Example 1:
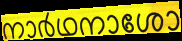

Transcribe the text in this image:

നാർഥനാശോ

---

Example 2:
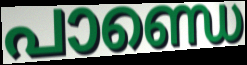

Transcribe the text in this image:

പാണ്ഡെ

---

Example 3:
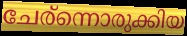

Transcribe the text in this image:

ചേര്ന്നൊരുക്കിയ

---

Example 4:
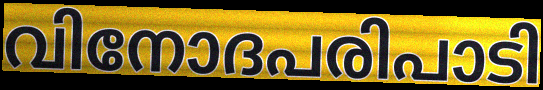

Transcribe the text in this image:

വിനോദപരിപാടി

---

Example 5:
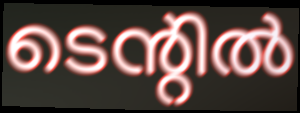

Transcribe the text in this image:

ടെന്റിൽ